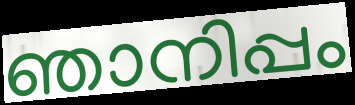
ഞാനിപ്പം